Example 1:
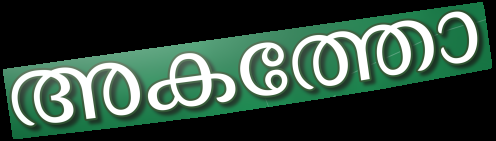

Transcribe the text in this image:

അകത്തോ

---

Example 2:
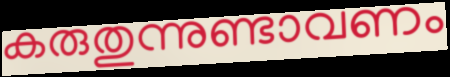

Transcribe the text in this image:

കരുതുന്നുണ്ടാവണം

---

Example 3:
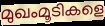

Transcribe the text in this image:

മുഖംമൂടികളെ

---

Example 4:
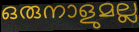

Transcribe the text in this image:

ഒരുനാളുമല്ല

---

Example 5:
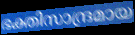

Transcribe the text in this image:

ഭക്തിസാന്ദ്രമായ